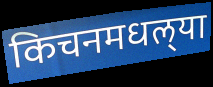
किचनमधल्या